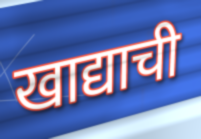
खाद्याची